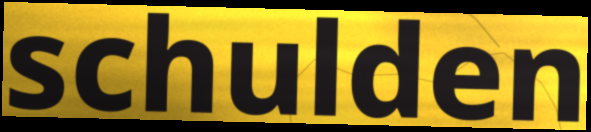
schulden